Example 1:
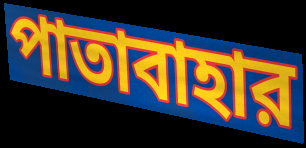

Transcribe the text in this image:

পাতাবাহার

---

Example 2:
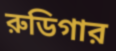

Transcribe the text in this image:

রুডিগার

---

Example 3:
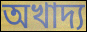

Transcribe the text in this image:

অখাদ্য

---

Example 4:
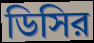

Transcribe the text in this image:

ডিসির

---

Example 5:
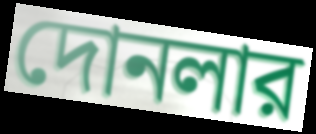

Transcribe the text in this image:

দোনলার